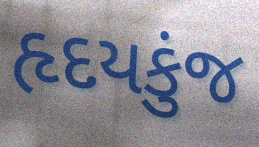
હૃદયકુંજ